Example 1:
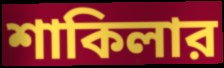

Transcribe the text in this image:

শাকিলার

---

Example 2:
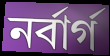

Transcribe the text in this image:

নর্বার্গ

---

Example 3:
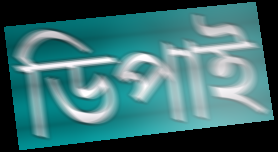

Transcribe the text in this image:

ডিপাই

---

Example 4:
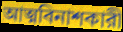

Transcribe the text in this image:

আত্মবিনাশকারী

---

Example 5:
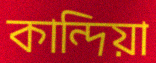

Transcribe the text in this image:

কান্দিয়া